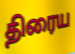
திரைய